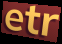
etr